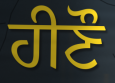
ਹੀਣੌ